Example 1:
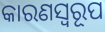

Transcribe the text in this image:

କାରଣସ୍ୱରୂପ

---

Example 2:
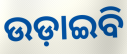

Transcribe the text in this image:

ଉଡ଼ାଇବି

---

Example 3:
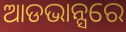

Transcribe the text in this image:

ଆଡଭାନ୍ସରେ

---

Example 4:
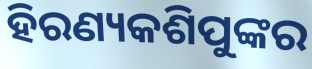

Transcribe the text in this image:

ହିରଣ୍ୟକଶିପୁଙ୍କର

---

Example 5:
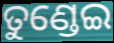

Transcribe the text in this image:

ତୁଣ୍ଡେଇ